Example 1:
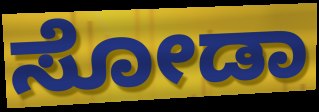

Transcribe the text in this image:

ಸೋಡಾ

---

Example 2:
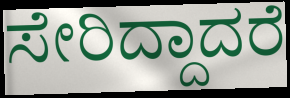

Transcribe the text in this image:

ಸೇರಿದ್ದಾದರೆ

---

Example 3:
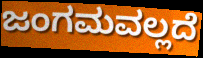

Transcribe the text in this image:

ಜಂಗಮವಲ್ಲದೆ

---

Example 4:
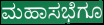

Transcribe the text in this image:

ಮಹಾಸಭೆಗೂ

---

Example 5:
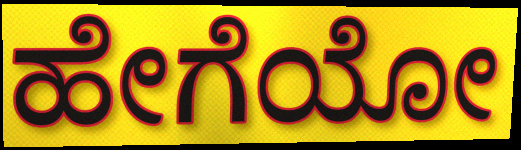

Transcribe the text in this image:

ಹೇಗೆಯೋ